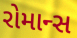
રોમાન્સ